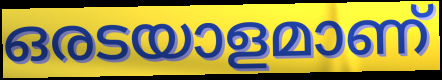
ഒരടയാളമാണ്